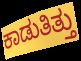
ಕಾಡುತಿತ್ತು